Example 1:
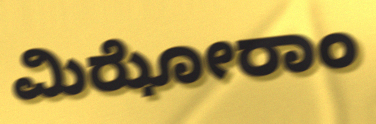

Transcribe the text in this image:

ಮಿಝೋರಾಂ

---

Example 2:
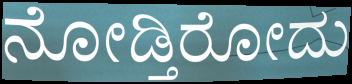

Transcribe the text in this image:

ನೋಡ್ತಿರೋದು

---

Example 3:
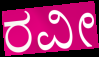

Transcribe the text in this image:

ರವೀ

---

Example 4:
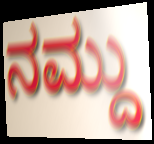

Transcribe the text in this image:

ನಮ್ದು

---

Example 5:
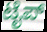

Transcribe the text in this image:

ಟೈಪ್